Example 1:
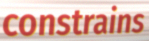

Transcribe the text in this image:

constrains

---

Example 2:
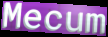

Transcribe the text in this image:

Mecum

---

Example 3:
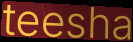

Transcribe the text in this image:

teesha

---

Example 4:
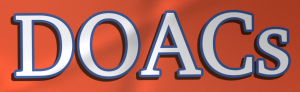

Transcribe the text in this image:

DOACs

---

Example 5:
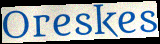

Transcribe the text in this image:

Oreskes